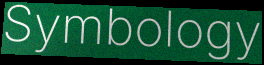
Symbology